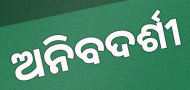
ଅନିବଦର୍ଶୀ